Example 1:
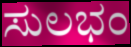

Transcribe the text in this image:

ಸುಲಭಂ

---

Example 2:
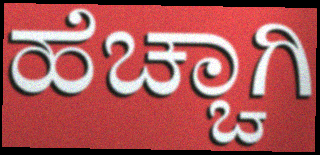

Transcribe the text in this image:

ಹೆಚ್ಚಾಗಿ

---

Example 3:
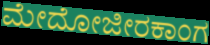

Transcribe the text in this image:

ಮೇದೋಜೀರಕಾಂಗ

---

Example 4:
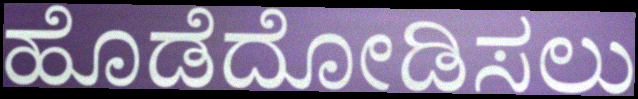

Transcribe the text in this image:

ಹೊಡೆದೋಡಿಸಲು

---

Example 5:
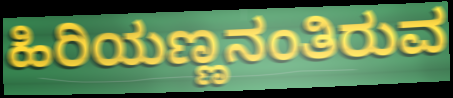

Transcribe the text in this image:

ಹಿರಿಯಣ್ಣನಂತಿರುವ